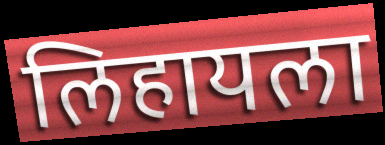
लिहायला